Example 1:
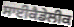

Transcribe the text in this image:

ਸਾਈਕੈਡੇਲੀਕ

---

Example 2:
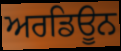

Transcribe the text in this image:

ਅਰਡਿਊਨ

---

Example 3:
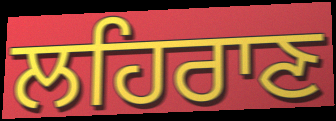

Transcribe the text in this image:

ਲਹਿਰਾਣ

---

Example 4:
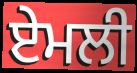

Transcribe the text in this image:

ਏਮਲੀ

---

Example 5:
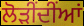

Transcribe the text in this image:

ਲੋੜੀਂਦੀਂਆਂ